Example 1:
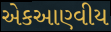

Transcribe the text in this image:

એકઆણ્વીય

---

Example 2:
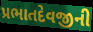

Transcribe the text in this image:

પ્રભાતદેવજીની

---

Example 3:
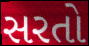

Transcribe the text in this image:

સરતો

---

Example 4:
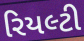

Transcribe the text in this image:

રિયલ્ટી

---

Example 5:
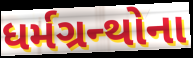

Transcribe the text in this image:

ધર્મગ્રન્થોના